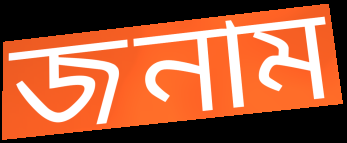
জনাম